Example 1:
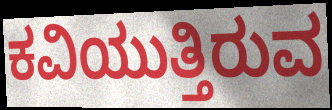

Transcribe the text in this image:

ಕವಿಯುತ್ತಿರುವ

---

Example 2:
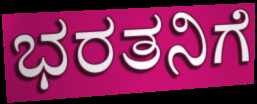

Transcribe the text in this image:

ಭರತನಿಗೆ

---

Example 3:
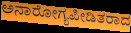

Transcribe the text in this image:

ಅನಾರೋಗ್ಯಪೀಡಿತರಾದ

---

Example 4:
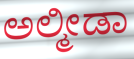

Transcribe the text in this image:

ಅಲ್ಮೀಡಾ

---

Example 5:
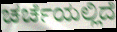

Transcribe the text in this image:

ಚರ್ಚೆಯಲ್ಲಿದೆ